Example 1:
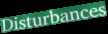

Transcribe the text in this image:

Disturbances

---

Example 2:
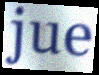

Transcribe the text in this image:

jue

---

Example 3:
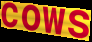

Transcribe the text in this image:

cows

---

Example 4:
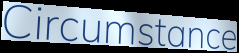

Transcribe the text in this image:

Circumstance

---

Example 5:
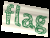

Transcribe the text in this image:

flag